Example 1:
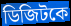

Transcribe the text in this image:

ডিজিটকে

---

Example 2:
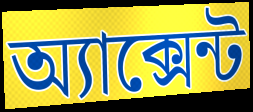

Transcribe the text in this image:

অ্যাক্সেন্ট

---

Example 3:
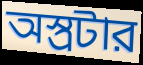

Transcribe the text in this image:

অস্ত্রটার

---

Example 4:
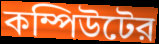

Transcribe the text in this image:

কম্পিউটের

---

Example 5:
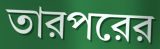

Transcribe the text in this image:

তারপরের